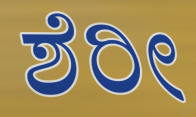
ಶೆರೀ